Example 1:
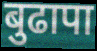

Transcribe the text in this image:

बुढापा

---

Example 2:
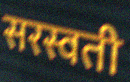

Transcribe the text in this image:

सरस्‍वती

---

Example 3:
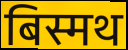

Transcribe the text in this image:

बिस्मथ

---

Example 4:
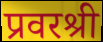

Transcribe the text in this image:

प्रवरश्री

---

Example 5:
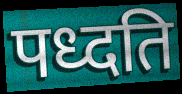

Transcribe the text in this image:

पध्दति